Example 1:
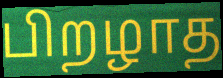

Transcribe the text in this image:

பிறழாத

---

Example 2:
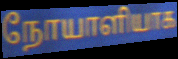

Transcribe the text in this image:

நோயாளியாக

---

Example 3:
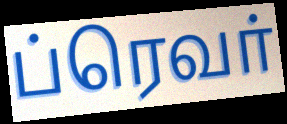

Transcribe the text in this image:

ப்ரெவர்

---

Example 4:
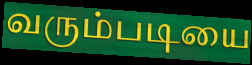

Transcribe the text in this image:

வரும்படியை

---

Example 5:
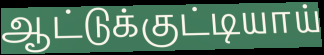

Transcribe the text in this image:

ஆட்டுக்குட்டியாய்